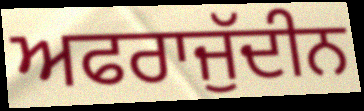
ਅਫਰਾਜੁੱਦੀਨ